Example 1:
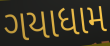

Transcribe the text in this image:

ગયાધામ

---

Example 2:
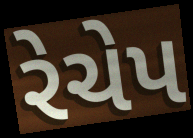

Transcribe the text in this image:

રેચેપ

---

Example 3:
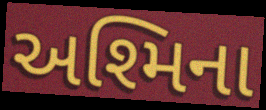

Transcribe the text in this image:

અશ્મિના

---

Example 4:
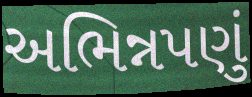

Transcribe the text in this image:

અભિન્નપણું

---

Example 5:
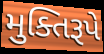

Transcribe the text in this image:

મુક્તિરૂપે